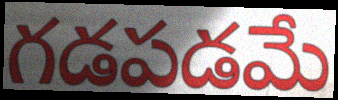
గడపడమే